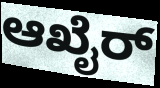
ಆಖೈರ್